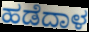
ಹಡೆದಾಳ